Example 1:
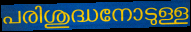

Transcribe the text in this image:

പരിശുദ്ധനോടുള്ള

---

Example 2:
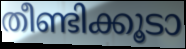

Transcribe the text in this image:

തീണ്ടിക്കൂടാ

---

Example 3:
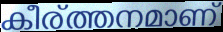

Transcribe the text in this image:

കീര്ത്തനമാണ്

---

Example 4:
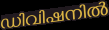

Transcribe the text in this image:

ഡിവിഷനിൽ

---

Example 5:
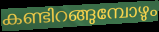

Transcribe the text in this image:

കണ്ടിറങ്ങുമ്പോഴും